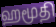
ஹமூதி